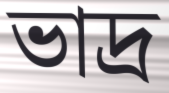
ভাদ্র